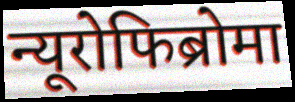
न्यूरोफिब्रोमा